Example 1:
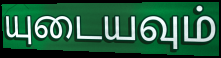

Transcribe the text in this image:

யுடையவும்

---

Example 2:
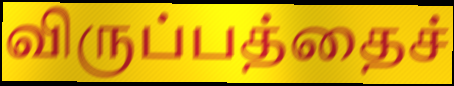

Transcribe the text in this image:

விருப்பத்தைச்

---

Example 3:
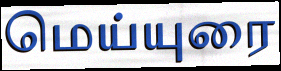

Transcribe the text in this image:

மெய்யுரை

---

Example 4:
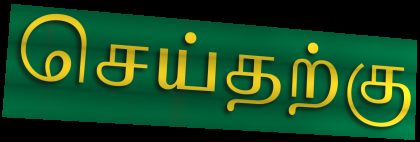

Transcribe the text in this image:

செய்தற்கு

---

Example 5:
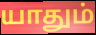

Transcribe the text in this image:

யாதும்